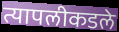
त्यापलीकडले